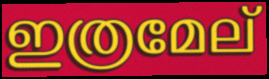
ഇത്രമേല്